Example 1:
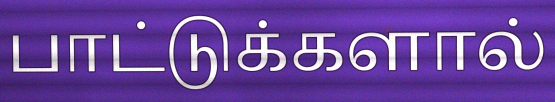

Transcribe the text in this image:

பாட்டுக்களால்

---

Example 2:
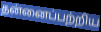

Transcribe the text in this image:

தன்னைப்பற்றிய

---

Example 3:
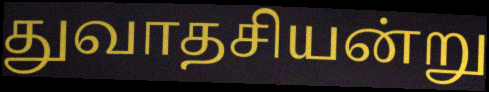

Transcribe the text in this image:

துவாதசியன்று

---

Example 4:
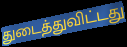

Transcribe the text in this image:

துடைத்துவிட்டது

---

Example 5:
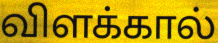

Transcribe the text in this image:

விளக்கால்